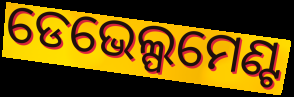
ଡେଭେଲ୍ପମେଣ୍ଟ